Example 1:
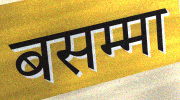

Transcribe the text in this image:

बसम्मा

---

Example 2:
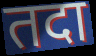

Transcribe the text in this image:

तदा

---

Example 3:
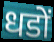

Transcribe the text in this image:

धडों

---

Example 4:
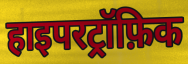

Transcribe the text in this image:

हाइपरट्रॉफ़िक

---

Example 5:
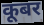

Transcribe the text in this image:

कूबर